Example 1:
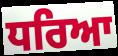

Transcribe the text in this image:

ਧਰਿਆ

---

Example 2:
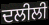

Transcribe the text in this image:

ਦਲੀਲੀ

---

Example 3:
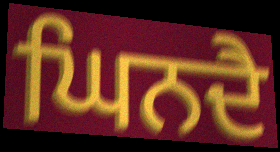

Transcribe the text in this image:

ਘਿਨਦੈ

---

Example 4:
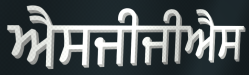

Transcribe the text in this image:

ਐਸਜੀਜੀਐਸ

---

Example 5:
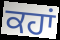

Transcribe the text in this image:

ਕਹਾਂ